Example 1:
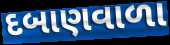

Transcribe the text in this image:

દબાણવાળા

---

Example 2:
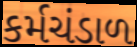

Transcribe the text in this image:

કર્મચંડાળ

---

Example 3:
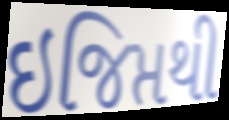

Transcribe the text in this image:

ઇજિપ્તથી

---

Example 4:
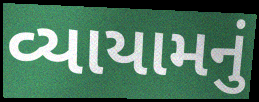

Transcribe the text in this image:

વ્યાયામનું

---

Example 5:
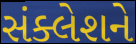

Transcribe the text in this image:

સંક્લેશને